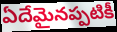
ఏదేమైనప్పటికీ